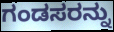
ಗಂಡಸರನ್ನು